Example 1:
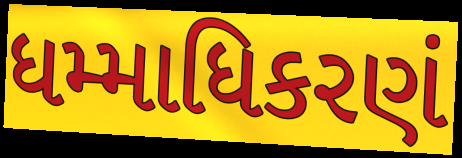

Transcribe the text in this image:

ધમ્માધિકરણં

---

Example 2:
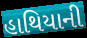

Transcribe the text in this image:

હાથિયાની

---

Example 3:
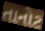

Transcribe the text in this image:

તાનોટ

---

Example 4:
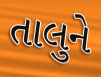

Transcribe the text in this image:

તાલુને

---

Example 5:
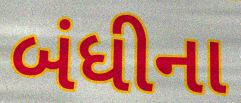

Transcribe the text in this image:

બંધીના